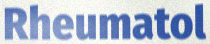
Rheumatol